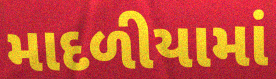
માદળીયામાં